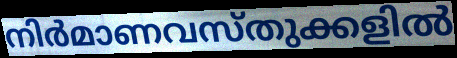
നിർമാണവസ്തുക്കളിൽ